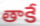
తాకే